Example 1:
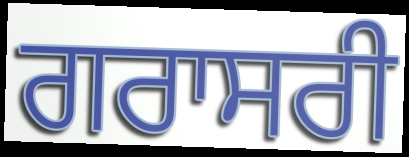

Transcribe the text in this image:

ਗਰਾਸਰੀ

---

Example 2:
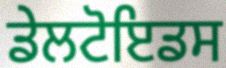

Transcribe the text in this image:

ਡੇਲਟੋਇਡਸ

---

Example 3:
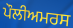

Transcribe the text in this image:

ਪੌਲੀਅਮਰਸ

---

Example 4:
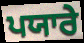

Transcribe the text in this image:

ਪਯਾਰੇ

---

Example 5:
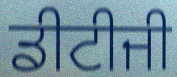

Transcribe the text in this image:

ਡੀਟੀਜੀ